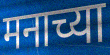
मनाच्या